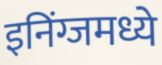
इनिंग्जमध्ये